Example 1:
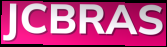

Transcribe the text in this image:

JCBRAS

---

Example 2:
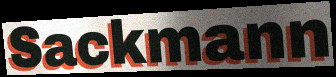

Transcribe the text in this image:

Sackmann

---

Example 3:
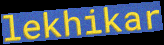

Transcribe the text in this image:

lekhikar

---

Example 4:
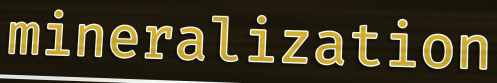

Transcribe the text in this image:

mineralization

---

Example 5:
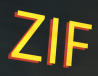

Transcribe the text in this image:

ZIF